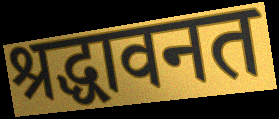
श्रद्धावनत